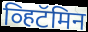
व्हिटॅमिन